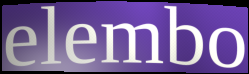
elembo